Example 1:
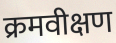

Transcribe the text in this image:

क्रमवीक्षण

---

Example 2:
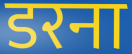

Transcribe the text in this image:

डरना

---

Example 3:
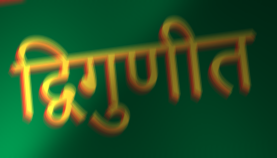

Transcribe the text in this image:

द्विगुणीत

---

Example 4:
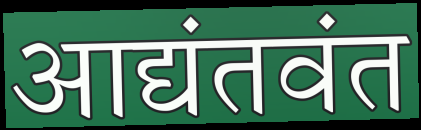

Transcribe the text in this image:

आद्यंतवंत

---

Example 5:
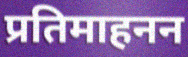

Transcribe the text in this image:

प्रतिमाहनन